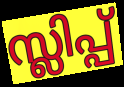
സ്ലിപ്പ്